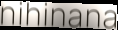
nihinana